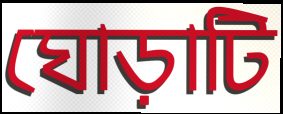
ঘোড়াটি